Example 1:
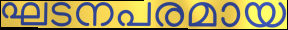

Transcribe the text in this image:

ഘടനപരമായ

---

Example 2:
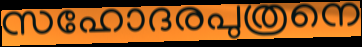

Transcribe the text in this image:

സഹോദരപുത്രനെ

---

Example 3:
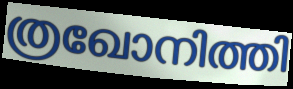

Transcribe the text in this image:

ത്രഖോനിത്തി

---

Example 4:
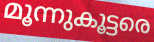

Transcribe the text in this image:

മൂന്നുകൂട്ടരെ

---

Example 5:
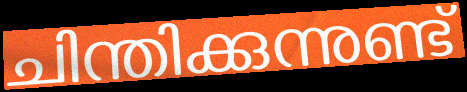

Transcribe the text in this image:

ചിന്തിക്കുന്നുണ്ട്